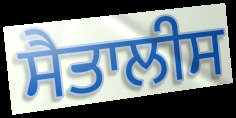
ਸੈਤਾਲੀਸ